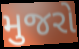
મુજરો